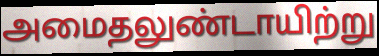
அமைதலுண்டாயிற்று